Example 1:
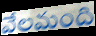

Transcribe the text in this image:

వేలమంది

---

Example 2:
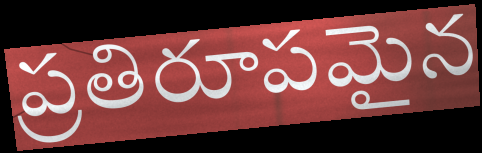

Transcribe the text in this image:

ప్రతిరూపమైన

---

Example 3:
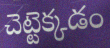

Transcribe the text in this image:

చెట్టెక్కడం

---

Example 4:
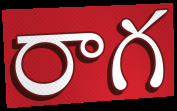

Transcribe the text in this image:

రాగ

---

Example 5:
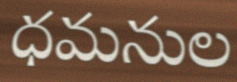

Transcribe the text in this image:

ధమనుల